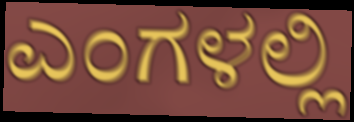
ಎಂಗಳಲ್ಲಿ